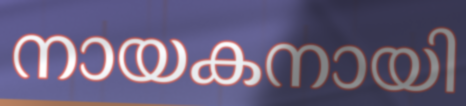
നായകനായി